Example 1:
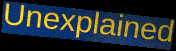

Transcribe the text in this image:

Unexplained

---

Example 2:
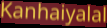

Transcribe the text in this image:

Kanhaiyalal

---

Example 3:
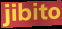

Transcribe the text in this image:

jibito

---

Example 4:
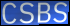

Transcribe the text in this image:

CSBS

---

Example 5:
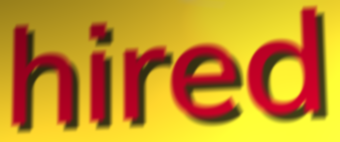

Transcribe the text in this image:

hired